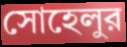
সোহেলুর